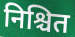
निश्चित